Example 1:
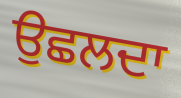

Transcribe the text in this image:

ਉਛਲਦਾ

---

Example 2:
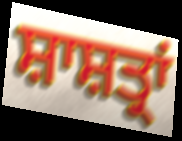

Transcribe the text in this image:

ਸ਼ਾਸ਼ਤ੍ਰਾਂ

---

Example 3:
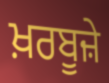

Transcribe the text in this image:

ਖ਼ਰਬੂਜ਼ੇ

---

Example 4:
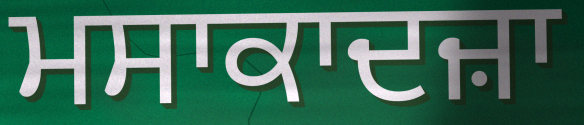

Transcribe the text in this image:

ਮਸਾਕਾਦਜ਼ਾ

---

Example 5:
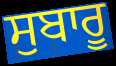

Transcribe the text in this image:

ਸੁਬਾਰੂ